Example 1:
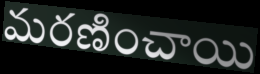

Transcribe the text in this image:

మరణించాయి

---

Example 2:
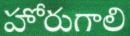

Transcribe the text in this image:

హోరుగాలి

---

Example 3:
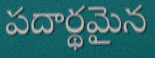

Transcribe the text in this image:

పదార్థమైన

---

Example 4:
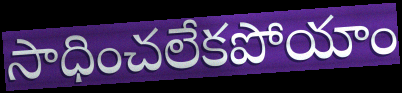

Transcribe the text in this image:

సాధించలేకపోయాం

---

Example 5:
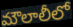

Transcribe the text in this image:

మౌలాలీలో